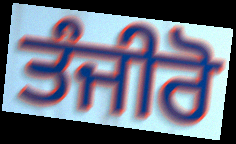
ਤੰਜੀਰੋ